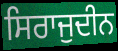
ਸਿਰਾਜੁਦੀਨ